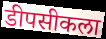
डीपसीकला